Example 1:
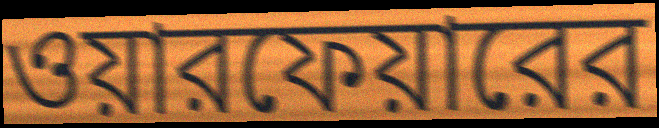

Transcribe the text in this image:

ওয়ারফেয়ারের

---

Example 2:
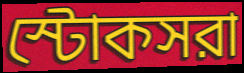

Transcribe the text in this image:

স্টোকসরা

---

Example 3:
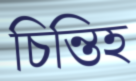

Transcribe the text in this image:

চিন্তিহ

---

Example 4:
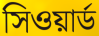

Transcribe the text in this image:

সিওয়ার্ড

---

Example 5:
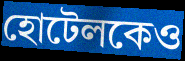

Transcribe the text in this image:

হোটেলকেও